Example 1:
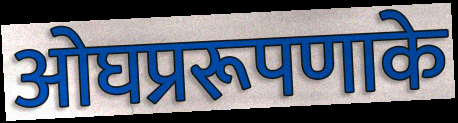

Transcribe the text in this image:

ओघप्ररूपणाके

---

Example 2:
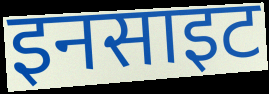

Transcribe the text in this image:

इनसाइट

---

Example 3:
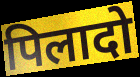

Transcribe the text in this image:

पिलादो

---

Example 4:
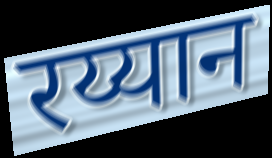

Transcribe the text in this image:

रय्यान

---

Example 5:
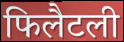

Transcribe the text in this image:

फिलैटली